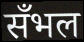
सँभल